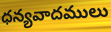
ధన్యవాదములు